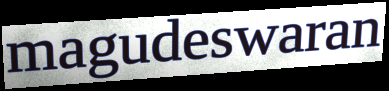
magudeswaran